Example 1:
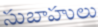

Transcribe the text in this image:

సుబాహులు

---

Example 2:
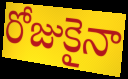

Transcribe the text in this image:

రోజుకైనా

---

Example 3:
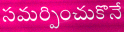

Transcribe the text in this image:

సమర్పించుకొనే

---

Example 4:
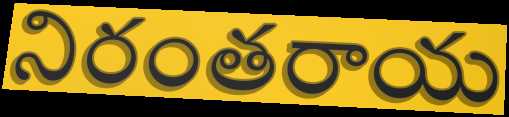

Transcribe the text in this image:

నిరంతరాయ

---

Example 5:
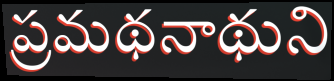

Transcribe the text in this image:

ప్రమథనాథుని